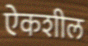
ऐकशील